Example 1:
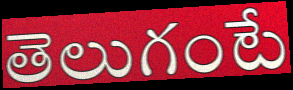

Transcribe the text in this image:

తెలుగంటే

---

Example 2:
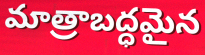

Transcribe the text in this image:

మాత్రాబద్ధమైన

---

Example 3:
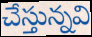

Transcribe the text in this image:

చేస్తున్నవి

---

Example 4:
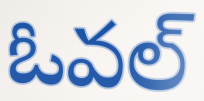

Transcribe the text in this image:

ఓవల్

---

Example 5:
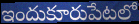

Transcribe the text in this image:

ఇందుకూరుపేటలో